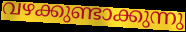
വഴക്കുണ്ടാക്കുന്നു